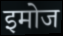
इमोज